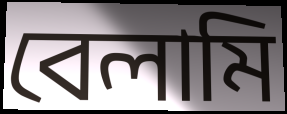
বেলামি